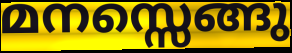
മനസ്സെങ്ങു